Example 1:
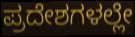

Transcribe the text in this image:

ಪ್ರದೇಶಗಳಲ್ಲೇ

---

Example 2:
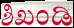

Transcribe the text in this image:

ಶಿಖಂಡಿ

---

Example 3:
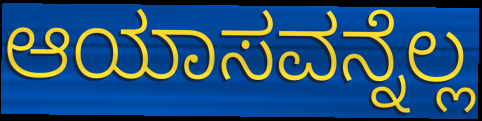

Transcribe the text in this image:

ಆಯಾಸವನ್ನೆಲ್ಲ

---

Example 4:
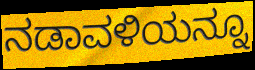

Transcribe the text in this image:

ನಡಾವಳಿಯನ್ನೂ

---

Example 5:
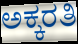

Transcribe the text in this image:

ಅಕ್ಕರತಿ